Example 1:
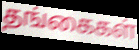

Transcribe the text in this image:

தங்கைகள்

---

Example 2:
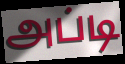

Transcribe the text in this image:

அப்டி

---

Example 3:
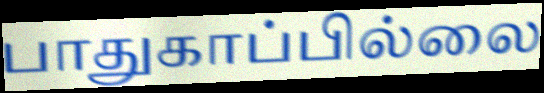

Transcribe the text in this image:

பாதுகாப்பில்லை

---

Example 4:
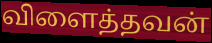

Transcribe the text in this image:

விளைத்தவன்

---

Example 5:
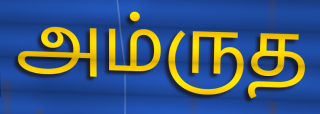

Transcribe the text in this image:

அம்ருத